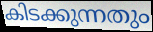
കിടക്കുന്നതും